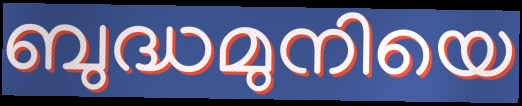
ബുദ്ധമുനിയെ